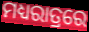
ମଧ୍ୟରାତ୍ରରେ